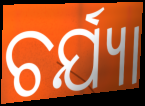
ଚର୍ଯ୍ଯା